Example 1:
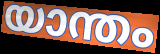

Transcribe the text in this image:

യാന്തം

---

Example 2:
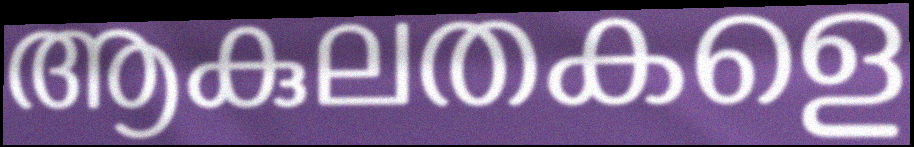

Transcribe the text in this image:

ആകുലതകളെ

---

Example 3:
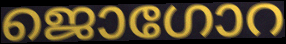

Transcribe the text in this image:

ജൊഗോറ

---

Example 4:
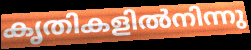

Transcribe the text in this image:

കൃതികളിൽനിന്നു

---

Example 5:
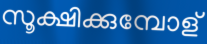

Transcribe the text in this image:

സൂക്ഷിക്കുമ്പോള്